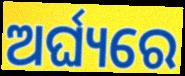
ଅର୍ଘ୍ୟରେ